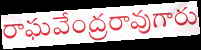
రాఘవేంద్రరావుగారు